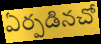
ఏర్పడినచో